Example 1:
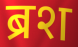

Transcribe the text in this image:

ब्रश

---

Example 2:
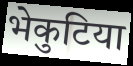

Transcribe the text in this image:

भेकुटिया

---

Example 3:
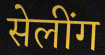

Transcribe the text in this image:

सेलींग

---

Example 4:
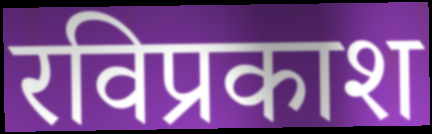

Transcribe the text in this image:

रविप्रकाश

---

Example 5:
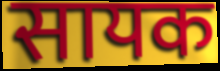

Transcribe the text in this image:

सायक